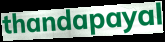
thandapayal